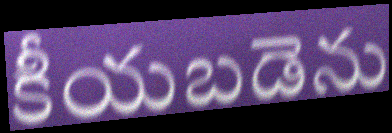
కీయబడెను